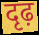
दृढ़